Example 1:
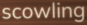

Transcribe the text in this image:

scowling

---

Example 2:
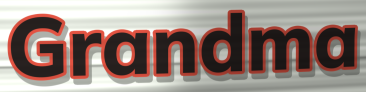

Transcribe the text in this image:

Grandma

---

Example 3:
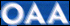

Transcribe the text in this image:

OAA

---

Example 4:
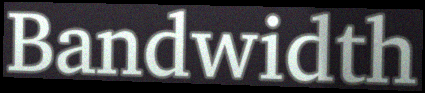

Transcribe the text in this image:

Bandwidth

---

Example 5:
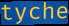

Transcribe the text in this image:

tyche